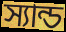
স্যান্ড